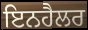
ਇਨਹੈਲਰ